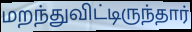
மறந்துவிட்டிருந்தார்